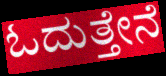
ಓದುತ್ತೇನೆ